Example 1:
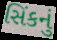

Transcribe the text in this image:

સિંકનું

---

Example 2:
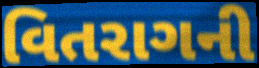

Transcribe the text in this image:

વિતરાગની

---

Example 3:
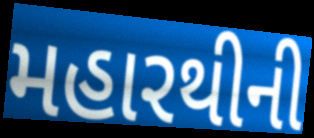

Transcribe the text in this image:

મહારથીની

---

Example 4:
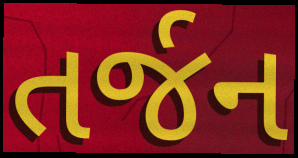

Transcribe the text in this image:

તર્જન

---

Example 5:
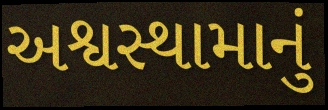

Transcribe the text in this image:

અશ્વસ્થામાનું